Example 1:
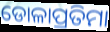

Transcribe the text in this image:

ଡୋଳାପ୍ରତିମା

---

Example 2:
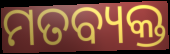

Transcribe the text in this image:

ମତବ୍ୟକ୍ତ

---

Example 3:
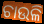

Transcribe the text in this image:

ଚାଉଳି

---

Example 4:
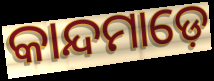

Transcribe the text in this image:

କାନ୍ଦମାଡ଼େ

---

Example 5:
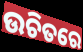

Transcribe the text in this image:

ଉଚିତରେ